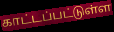
காட்டப்பட்டுள்ள